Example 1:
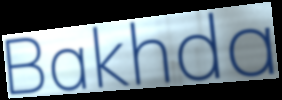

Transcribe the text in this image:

Bakhda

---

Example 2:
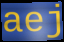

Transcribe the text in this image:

aej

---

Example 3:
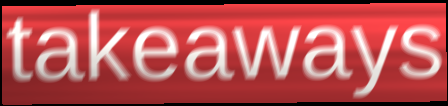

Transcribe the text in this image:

takeaways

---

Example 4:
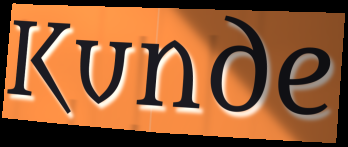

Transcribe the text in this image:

Kunde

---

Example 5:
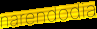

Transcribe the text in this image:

narendodia